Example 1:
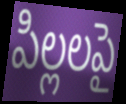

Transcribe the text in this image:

పిల్లలపై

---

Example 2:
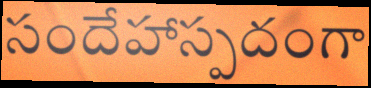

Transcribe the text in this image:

సందేహాస్పదంగా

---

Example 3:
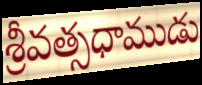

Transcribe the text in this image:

శ్రీవత్సధాముడు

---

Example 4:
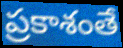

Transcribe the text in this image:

ప్రకాశంతే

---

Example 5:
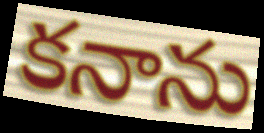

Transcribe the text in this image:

కనాను